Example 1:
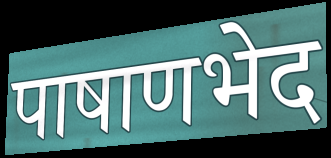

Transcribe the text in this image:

पाषाणभेद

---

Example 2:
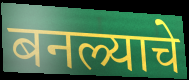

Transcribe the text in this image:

बनल्याचे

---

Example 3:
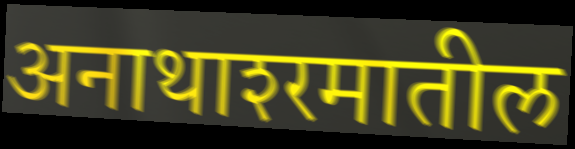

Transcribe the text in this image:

अनाथाश्रमातील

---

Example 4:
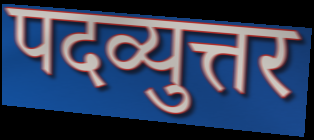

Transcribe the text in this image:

पदव्युत्तर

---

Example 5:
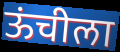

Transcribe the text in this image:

ऊंचीला